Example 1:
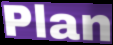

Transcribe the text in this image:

Plan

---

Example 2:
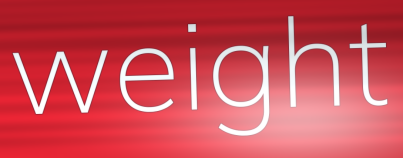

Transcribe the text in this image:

weight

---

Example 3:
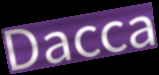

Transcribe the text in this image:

Dacca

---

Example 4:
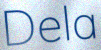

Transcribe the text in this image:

Dela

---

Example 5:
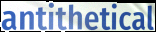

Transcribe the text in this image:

antithetical